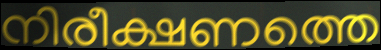
നിരീക്ഷണത്തെ